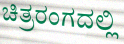
ಚಿತ್ರರಂಗದಲ್ಲಿ